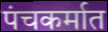
पंचकर्मात